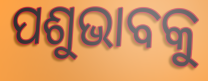
ପଶୁଭାବକୁ